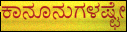
ಕಾನೂನುಗಳಷ್ಟೇ